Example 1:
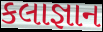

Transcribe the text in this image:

કલાજ્ઞાન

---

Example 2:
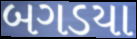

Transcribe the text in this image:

બગડયા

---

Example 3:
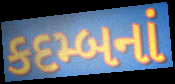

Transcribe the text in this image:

કદમ્બનાં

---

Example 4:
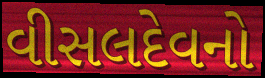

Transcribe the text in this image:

વીસલદેવનો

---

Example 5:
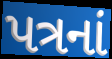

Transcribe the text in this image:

પત્રનાં